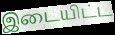
இடையிட்ட